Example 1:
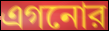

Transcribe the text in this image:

এগনোর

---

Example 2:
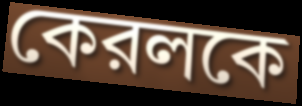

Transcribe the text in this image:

কেরলকে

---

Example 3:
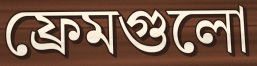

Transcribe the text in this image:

ফ্রেমগুলো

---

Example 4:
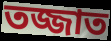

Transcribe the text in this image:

তজ্জাত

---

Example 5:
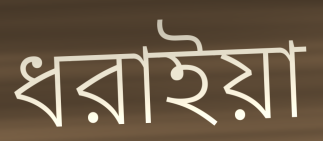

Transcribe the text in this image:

ধরাইয়া